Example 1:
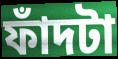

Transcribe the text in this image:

ফাঁদটা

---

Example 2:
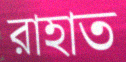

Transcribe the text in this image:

রাহাত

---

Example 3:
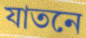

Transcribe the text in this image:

যাতনে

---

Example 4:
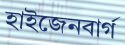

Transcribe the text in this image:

হাইজেনবার্গ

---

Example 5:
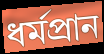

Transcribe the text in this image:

ধর্মপ্রান